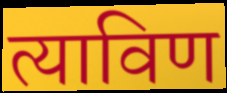
त्याविण